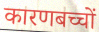
कारणबच्चों